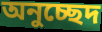
অনুচ্ছেদ